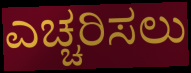
ಎಚ್ಚರಿಸಲು